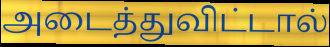
அடைத்துவிட்டால்